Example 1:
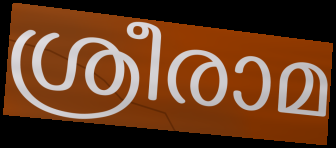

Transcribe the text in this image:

ശ്രീരാമ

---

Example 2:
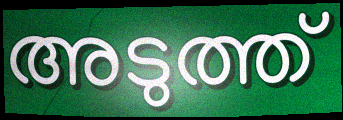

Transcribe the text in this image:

അടുത്ത്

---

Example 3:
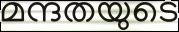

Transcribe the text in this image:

മന്ദതയുടെ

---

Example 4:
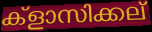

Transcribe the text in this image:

ക്ളാസിക്കല്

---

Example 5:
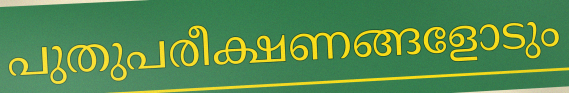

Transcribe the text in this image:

പുതുപരീക്ഷണങ്ങളോടും